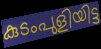
കുടംപുളിയിട്ട